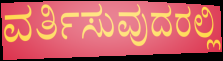
ವರ್ತಿಸುವುದರಲ್ಲಿ